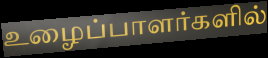
உழைப்பாளர்களில்